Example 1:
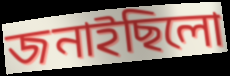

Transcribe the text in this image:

জনাইছিলো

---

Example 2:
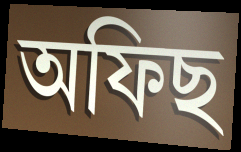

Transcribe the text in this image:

অফিছ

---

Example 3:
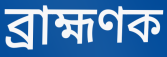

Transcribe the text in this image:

ব্ৰাহ্মণক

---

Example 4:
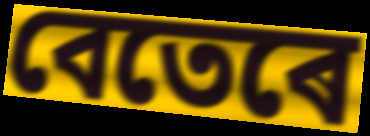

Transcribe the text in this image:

বেতেৰে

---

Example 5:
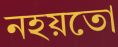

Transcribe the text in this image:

নহয়তো